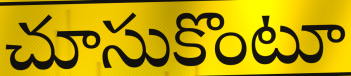
చూసుకొంటూ